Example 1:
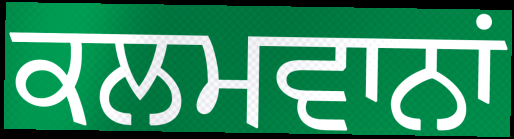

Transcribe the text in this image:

ਕਲਮਵਾਨਾਂ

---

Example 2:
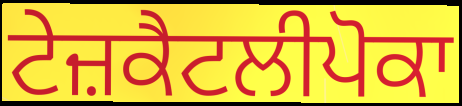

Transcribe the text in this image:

ਟੇਜ਼ਕੈਟਲੀਪੋਕਾ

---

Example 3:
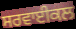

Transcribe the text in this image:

ਸਰਵਾਈਕਲ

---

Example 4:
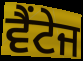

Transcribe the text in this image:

ਵੈਂਟੇਜ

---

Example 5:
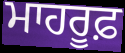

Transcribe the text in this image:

ਮਾਹਰੂਫ਼